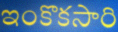
ఇంకొకసారి